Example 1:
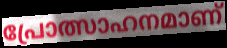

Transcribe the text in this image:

പ്രോത്സാഹനമാണ്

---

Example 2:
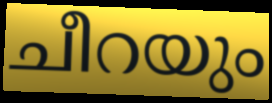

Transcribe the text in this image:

ചീറയും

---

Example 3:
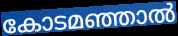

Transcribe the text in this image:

കോടമഞ്ഞാൽ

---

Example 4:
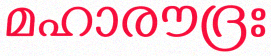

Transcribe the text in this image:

മഹാരൗദ്രഃ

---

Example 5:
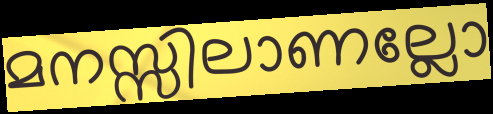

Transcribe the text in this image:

മനസ്സിലാണല്ലോ